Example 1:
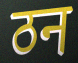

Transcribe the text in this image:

ठन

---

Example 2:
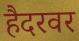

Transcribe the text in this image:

हैदरवर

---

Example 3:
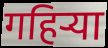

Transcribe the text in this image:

गहिर्‍या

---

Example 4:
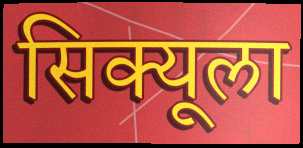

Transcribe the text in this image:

सिक्यूला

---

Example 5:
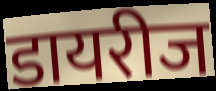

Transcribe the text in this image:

डायरीज